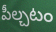
పీల్చటం